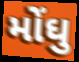
મોંઘુ